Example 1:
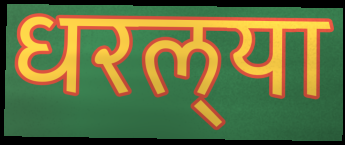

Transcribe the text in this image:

धरल्या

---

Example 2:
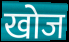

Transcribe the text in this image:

खोज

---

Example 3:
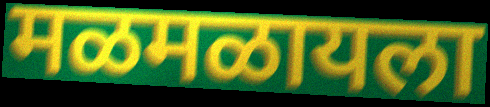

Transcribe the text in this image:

मळमळायला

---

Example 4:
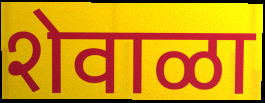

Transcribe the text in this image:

शेवाळा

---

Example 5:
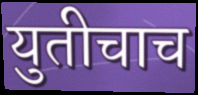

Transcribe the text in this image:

युतीचाच